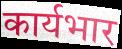
कार्यभार